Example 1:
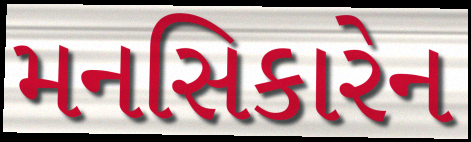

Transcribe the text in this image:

મનસિકારેન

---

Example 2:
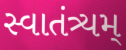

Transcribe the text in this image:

સ્વાતંત્ર્યમ્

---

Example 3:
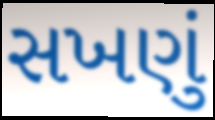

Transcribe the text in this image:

સખણું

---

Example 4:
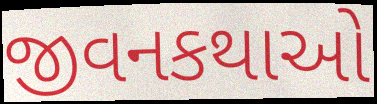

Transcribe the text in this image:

જીવનકથાઓ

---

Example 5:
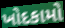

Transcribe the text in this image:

ખોદકામો